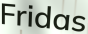
Fridas